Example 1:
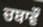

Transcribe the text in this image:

ਚਬਾਵੌ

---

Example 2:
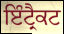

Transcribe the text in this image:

ਇੰਟ੍ਰੈਕਟ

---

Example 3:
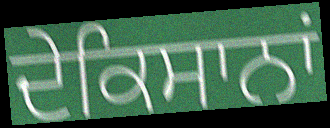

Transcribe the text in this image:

ਦੇਕਿਸਾਨਾਂ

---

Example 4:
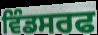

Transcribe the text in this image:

ਵਿੰਡਸਰਫ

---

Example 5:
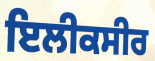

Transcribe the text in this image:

ਇਲੀਕਸੀਰ